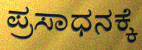
ಪ್ರಸಾಧನಕ್ಕೆ